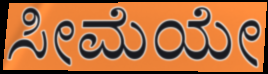
ಸೀಮೆಯೇ